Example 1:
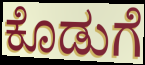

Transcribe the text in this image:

ಕೊಡುಗೆ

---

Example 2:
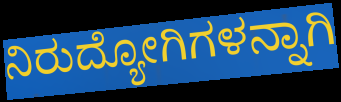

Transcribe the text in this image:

ನಿರುದ್ಯೋಗಿಗಳನ್ನಾಗಿ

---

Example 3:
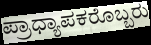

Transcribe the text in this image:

ಪ್ರಾಧ್ಯಾಪಕರೊಬ್ಬರು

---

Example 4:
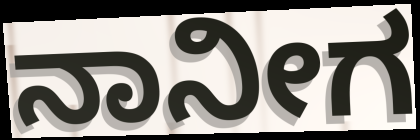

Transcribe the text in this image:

ನಾನೀಗ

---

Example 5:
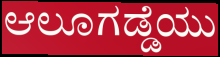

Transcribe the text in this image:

ಆಲೂಗಡ್ಡೆಯು